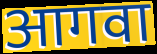
आगवा